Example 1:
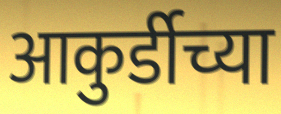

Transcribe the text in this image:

आकुर्डीच्या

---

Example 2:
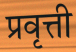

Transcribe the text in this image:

प्रवृत्ती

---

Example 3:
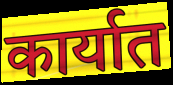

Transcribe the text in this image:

कार्यात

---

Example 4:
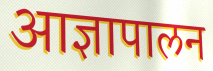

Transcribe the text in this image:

आज्ञापालन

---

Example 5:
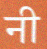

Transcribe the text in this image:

नी